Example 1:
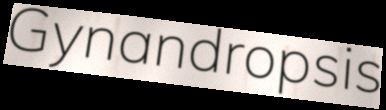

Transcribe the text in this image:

Gynandropsis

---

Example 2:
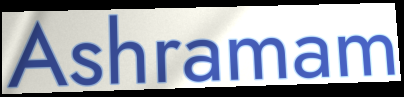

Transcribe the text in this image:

Ashramam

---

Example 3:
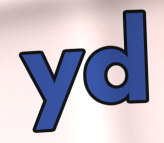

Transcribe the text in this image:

yd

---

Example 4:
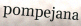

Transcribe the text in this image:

pompejana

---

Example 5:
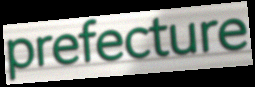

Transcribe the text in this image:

prefecture